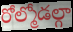
రోల్మోడల్గా